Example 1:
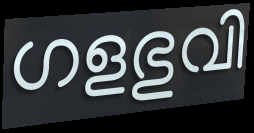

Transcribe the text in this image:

ഗളഭുവി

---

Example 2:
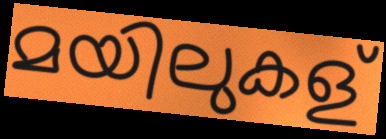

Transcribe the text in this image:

മയിലുകള്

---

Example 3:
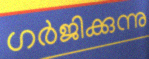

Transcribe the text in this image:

ഗർജിക്കുന്നു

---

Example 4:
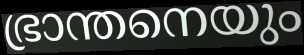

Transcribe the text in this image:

ഭ്രാന്തനെയും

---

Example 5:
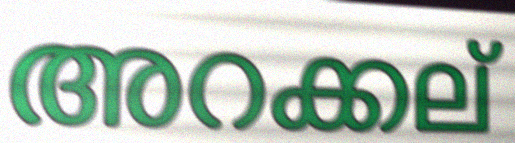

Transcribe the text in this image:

അറക്കല്